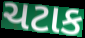
ચટાક